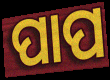
ପାପ